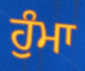
ਹੁੰਮਾ